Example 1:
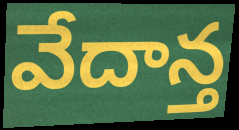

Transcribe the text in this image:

వేదాన్త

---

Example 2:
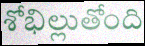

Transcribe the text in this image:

శోభిల్లుతోంది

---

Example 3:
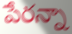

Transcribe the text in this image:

పేరన్నా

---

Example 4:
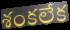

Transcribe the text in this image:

శంకలేక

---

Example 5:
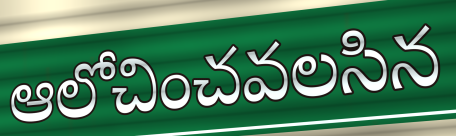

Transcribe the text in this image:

ఆలోచించవలసిన